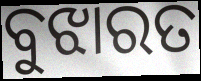
ବୁଝାରତ